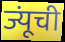
ज्यूंची